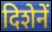
दिशेनें